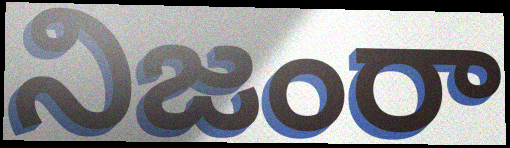
నిజంరా